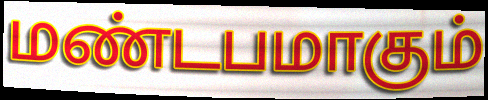
மண்டபமாகும்